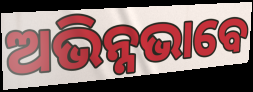
ଅଭିନ୍ନଭାବେ